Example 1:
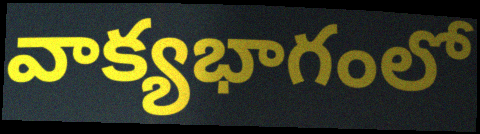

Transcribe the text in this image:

వాక్యభాగంలో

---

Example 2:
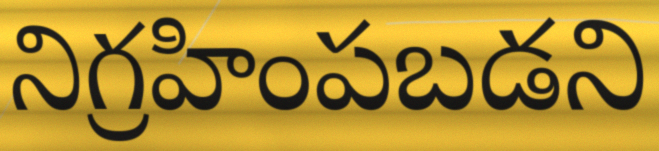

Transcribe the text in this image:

నిగ్రహింపబడని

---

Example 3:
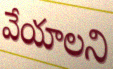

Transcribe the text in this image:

వేయాలని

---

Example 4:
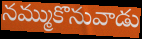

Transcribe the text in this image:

నమ్ముకొనువాడు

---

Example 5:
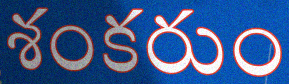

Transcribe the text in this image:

శంకరుం